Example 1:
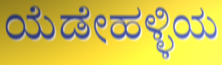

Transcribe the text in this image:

ಯೆಡೇಹಳ್ಳಿಯ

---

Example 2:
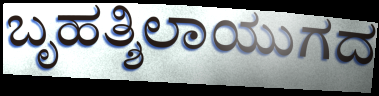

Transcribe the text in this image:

ಬೃಹತ್ಶಿಲಾಯುಗದ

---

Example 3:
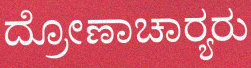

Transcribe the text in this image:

ದ್ರೋಣಾಚಾರ‍್ಯರು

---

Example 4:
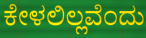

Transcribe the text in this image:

ಕೇಳಲಿಲ್ಲವೆಂದು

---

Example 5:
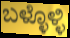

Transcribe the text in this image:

ಬಳ್ಳೊಳ್ಳಿ